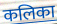
कलिका